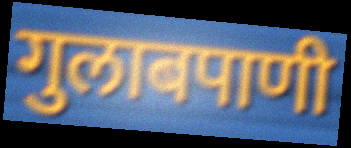
गुलाबपाणी